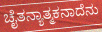
ಚೈತನ್ಯಾತ್ಮಕನಾದೆನು